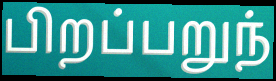
பிறப்பறுந்